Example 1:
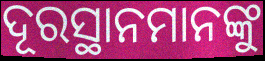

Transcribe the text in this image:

ଦୂରସ୍ଥାନମାନଙ୍କୁ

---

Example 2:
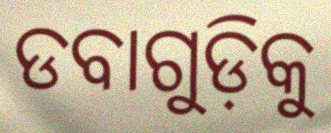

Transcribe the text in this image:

ଡବାଗୁଡ଼ିକୁ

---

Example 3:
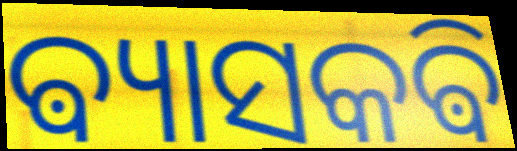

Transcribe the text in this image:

ଵ୍ୟାସକଵି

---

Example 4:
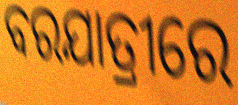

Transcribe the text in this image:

ବରଯାତ୍ରୀରେ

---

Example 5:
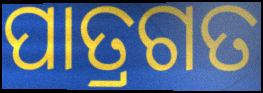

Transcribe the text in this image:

ପାତ୍ରଗତ